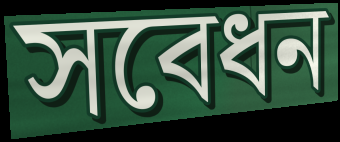
সবেধন